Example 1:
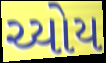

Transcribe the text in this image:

ચ્યોય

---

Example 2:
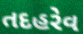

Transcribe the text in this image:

તદહરેવ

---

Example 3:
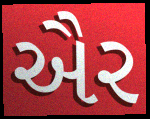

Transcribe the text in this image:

ઐર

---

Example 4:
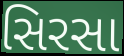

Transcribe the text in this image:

સિરસા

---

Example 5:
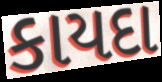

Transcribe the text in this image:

કાયદા